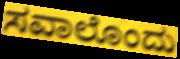
ಸವಾಲೊಂದು